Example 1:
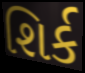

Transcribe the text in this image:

શિર્ક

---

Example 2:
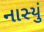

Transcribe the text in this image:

નાસ્યું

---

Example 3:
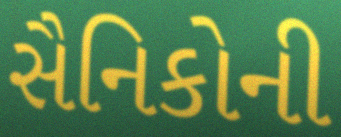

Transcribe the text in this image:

સૈનિકોની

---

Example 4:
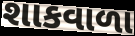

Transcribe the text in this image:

શાકવાળા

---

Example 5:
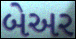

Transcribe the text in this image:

બેઅર